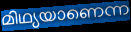
മിഥ്യയാണെന്ന